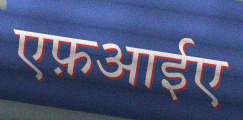
एफ़आईए